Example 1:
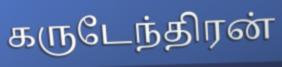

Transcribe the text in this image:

கருடேந்திரன்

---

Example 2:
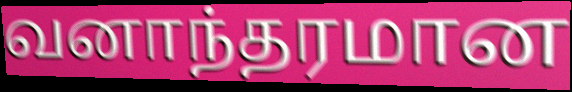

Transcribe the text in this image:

வனாந்தரமான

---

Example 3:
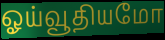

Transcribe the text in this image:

ஓய்வூதியமோ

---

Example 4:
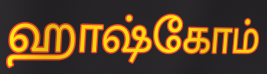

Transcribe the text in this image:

ஹாஷ்கோம்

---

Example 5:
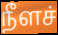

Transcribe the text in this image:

நீளச்